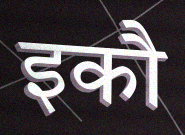
इकौ